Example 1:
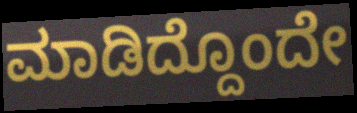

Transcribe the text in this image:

ಮಾಡಿದ್ದೊಂದೇ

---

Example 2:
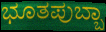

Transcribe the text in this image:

ಭೂತಪುಬ್ಬಾ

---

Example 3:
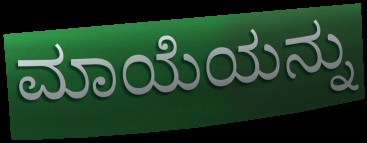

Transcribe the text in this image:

ಮಾಯೆಯನ್ನು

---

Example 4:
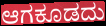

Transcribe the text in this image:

ಆಗಕೂಡದು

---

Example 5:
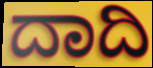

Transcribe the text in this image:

ದಾದಿ